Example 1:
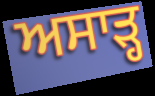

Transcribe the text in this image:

ਅਸਾੜ੍ਹ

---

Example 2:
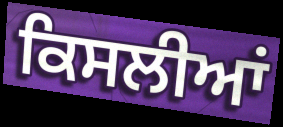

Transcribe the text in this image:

ਕਿਸਲੀਆਂ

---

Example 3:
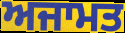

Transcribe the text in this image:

ਅਜਾਮਤ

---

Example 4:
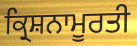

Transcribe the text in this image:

ਕ੍ਰਿਸ਼ਨਾਮੂਰਤੀ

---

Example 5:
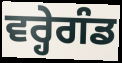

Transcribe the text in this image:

ਵਰ੍ਹੇਗੰਡ